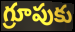
గ్రూపుకు